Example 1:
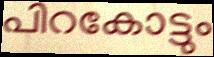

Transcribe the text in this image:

പിറകോട്ടും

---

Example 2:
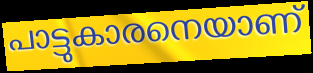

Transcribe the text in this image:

പാട്ടുകാരനെയാണ്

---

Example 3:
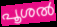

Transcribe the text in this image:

പൂശൽ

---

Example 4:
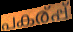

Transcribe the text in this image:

പകര്പ്പ്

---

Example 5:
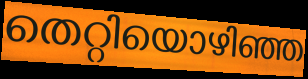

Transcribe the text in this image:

തെറ്റിയൊഴിഞ്ഞ